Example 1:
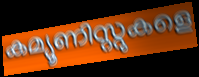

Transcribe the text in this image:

കമ്യൂണിസ്റ്റുകളെ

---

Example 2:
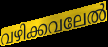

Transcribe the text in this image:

വഴിക്കവലേൽ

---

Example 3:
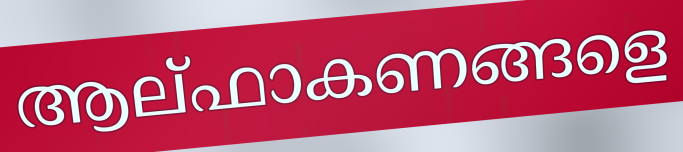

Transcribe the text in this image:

ആല്ഫാകണങ്ങളെ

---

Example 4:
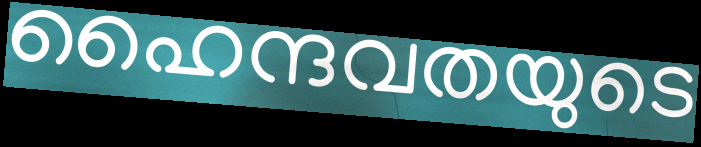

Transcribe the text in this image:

ഹൈന്ദവതയുടെ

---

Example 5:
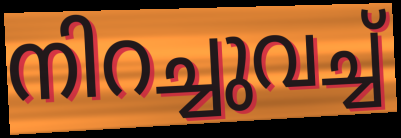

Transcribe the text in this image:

നിറച്ചുവച്ച്